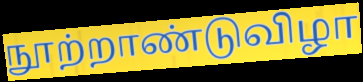
நூற்றாண்டுவிழா